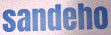
sandeho